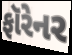
ફૉરેનર